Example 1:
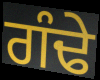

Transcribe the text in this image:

ਗੰਢੇ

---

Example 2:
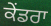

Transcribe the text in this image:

ਕੇਂਡਰਾ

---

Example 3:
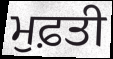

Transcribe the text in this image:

ਮੁਫ਼ਤੀ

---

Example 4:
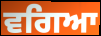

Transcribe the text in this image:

ਵਗਿਆ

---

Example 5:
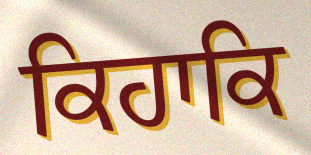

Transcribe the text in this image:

ਕਿਹਾਕਿ